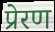
प्रेरण